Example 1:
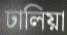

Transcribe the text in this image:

ঢালিয়া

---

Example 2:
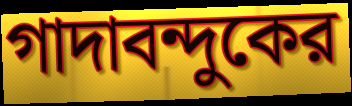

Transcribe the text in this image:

গাদাবন্দুকের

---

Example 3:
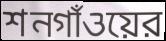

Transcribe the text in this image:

শনগাঁওয়ের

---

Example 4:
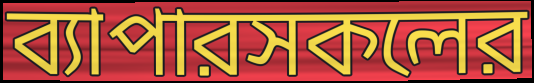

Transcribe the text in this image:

ব্যাপারসকলের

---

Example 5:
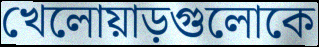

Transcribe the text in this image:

খেলোয়াড়গুলোকে